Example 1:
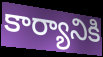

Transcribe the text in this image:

కార్యానికి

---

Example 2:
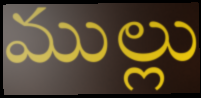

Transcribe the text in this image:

ముల్లు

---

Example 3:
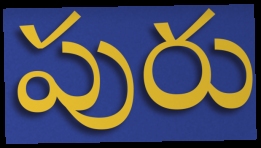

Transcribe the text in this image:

పురు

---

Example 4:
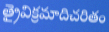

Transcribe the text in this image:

త్రైవిక్రమాదిచరితం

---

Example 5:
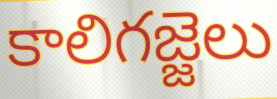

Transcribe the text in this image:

కాలిగజ్జెలు